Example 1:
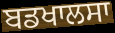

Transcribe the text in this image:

ਬਡਖਾਲਸਾ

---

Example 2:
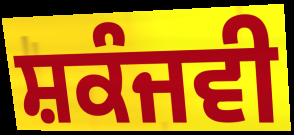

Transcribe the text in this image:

ਸ਼ਕੰਜਵੀ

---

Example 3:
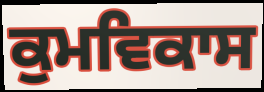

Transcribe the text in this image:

ਕੁਮਵਿਕਾਸ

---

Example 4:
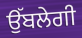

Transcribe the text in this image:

ਉੱਬਲੇਗੀ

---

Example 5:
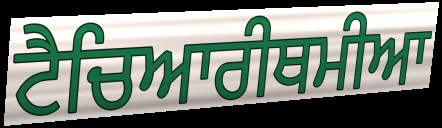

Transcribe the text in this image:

ਟੈਚਿਆਰੀਥਮੀਆ